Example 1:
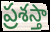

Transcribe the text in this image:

ప్రశస్తా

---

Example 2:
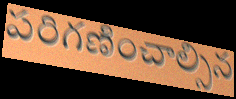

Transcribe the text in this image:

పరిగణించాల్సిన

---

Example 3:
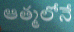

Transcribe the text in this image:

ఆత్మలోనే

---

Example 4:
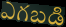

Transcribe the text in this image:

ఎగబడి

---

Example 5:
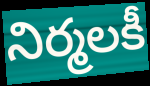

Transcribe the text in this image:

నిర్మలకీ